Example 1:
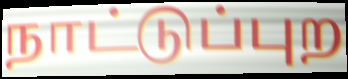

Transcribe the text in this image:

நாட்டுப்புற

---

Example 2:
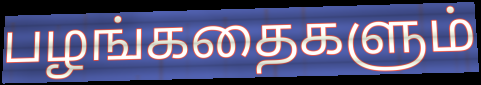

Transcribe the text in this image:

பழங்கதைகளும்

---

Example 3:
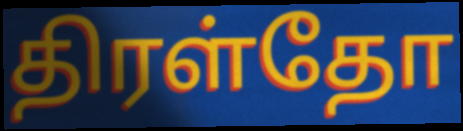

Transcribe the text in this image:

திரள்தோ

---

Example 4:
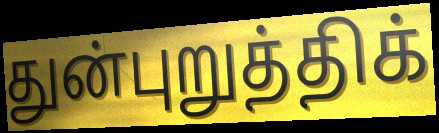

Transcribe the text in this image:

துன்புறுத்திக்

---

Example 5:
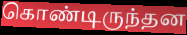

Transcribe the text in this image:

கொண்டிருந்தன